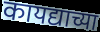
कायद्याच्या